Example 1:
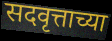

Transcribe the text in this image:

सदवृत्ताच्या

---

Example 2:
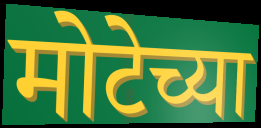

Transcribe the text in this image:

मोटेच्या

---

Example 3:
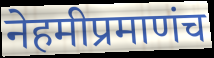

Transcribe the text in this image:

नेहमीप्रमाणंच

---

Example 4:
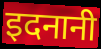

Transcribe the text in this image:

इदनानी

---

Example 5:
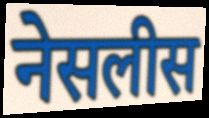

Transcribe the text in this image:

नेसलीस